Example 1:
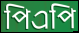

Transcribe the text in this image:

পিএপি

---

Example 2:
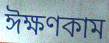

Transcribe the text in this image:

ঈক্ষণকাম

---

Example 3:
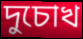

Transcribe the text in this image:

দুচোখ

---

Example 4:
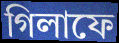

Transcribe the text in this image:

গিলাফে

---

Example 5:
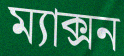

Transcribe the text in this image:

ম্যাক্সন